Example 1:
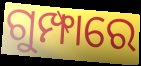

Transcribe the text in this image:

ଗୁମ୍ଫାରେ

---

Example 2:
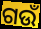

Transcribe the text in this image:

ଗଉଁ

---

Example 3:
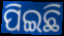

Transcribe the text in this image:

ପିଇଛି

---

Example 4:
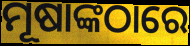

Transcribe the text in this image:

ମୂଷାଙ୍କଠାରେ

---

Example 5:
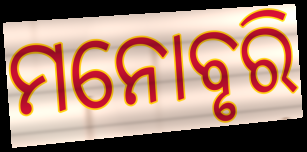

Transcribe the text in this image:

ମନୋବୃରି